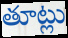
తూట్లు